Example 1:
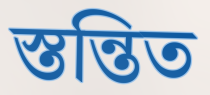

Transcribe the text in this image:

স্তন্তিত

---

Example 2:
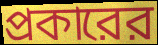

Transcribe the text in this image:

প্রকারের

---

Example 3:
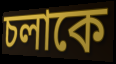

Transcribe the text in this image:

চলাকে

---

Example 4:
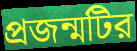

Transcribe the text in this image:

প্রজন্মটির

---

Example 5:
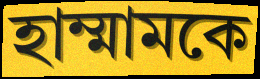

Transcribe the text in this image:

হাম্মামকে